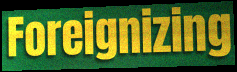
Foreignizing